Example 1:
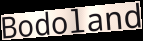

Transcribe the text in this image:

Bodoland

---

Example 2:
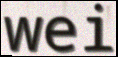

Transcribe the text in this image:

wei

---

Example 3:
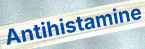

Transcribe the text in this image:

Antihistamine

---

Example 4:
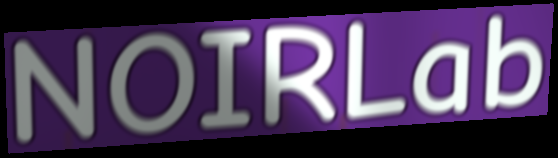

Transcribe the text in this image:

NOIRLab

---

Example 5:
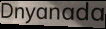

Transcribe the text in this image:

Dnyanada